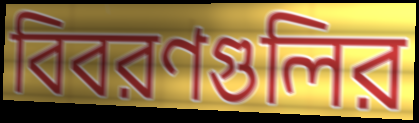
বিবরণগুলির